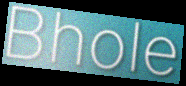
Bhole